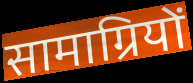
सामाग्रियों